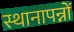
स्थानापन्नों